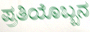
ಪ್ರತಿಯೊಬ್ಬನ